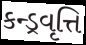
કન્ડ્રવૃત્તિ